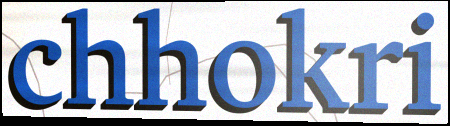
chhokri